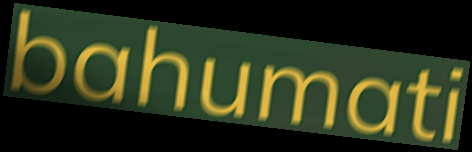
bahumati